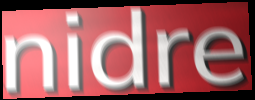
nidre